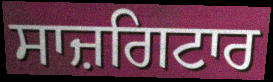
ਸਾਜ਼ਗਿਟਾਰ